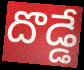
దొడ్డే